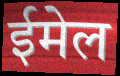
ईमेल